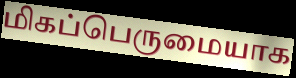
மிகப்பெருமையாக